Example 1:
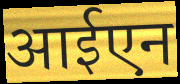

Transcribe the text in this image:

आईएन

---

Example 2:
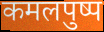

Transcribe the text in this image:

कमलपुष्प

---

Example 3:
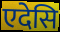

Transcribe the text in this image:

एदेसि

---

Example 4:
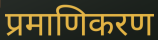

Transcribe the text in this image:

प्रमाणिकरण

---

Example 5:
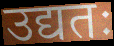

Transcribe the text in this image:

उद्यतः